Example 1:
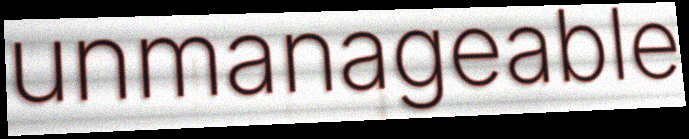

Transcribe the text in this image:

unmanageable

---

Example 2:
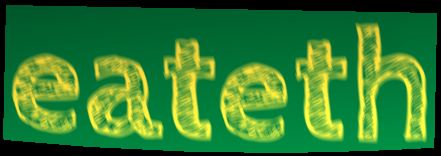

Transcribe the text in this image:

eateth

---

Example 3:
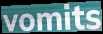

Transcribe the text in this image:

vomits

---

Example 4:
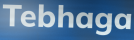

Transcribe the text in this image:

Tebhaga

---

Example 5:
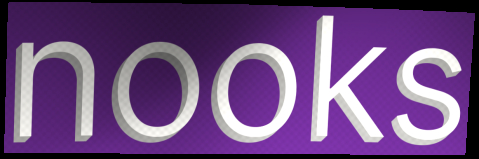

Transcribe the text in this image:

nooks